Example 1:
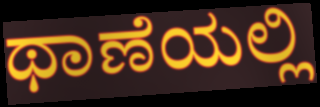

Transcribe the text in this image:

ಥಾಣೆಯಲ್ಲಿ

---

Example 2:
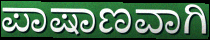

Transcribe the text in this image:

ಪಾಷಾಣವಾಗಿ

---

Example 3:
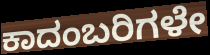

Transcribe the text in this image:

ಕಾದಂಬರಿಗಳೇ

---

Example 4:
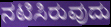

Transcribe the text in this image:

ನಟಿಸಿರುವುದು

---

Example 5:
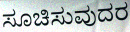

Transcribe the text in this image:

ಸೂಚಿಸುವುದರ